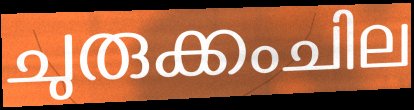
ചുരുക്കംചില